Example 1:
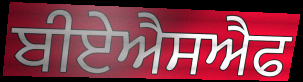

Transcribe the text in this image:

ਬੀਏਐਸਐਫ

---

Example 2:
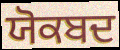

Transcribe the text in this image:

ਯੋਕਬਦ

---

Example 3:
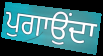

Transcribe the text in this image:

ਪੁਗਾਉਂਦਾ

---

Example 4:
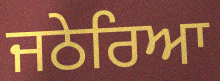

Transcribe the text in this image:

ਜਠੇਰਿਆ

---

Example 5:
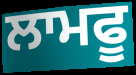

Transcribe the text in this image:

ਲਾਮਫੂ